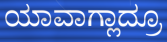
ಯಾವಾಗ್ಲಾದ್ರೂ